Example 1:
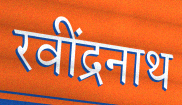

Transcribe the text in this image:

रवींद्रनाथ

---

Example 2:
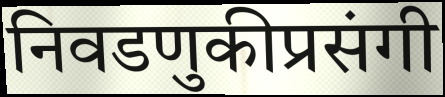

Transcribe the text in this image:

निवडणुकीप्रसंगी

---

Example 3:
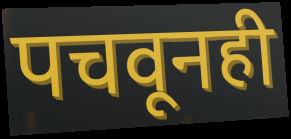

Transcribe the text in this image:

पचवूनही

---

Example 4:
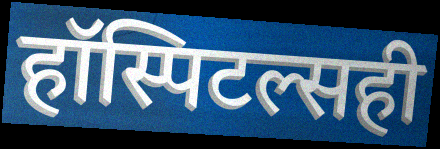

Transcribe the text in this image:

हॉस्पिटल्सही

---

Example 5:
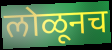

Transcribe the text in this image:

लोळूनच